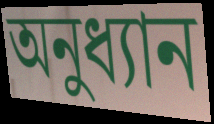
অনুধ্যান